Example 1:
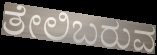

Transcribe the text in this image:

ತೇಲಿಬರುವ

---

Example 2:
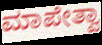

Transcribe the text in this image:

ಮಾಪೇತ್ವಾ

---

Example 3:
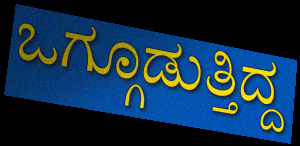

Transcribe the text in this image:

ಒಗ್ಗೂಡುತ್ತಿದ್ದ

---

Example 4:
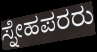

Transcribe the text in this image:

ಸ್ನೇಹಪರರು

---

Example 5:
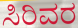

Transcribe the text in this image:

ಸಿರಿವರ